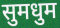
सुमधुम